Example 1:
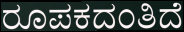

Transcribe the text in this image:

ರೂಪಕದಂತಿದೆ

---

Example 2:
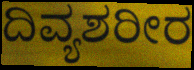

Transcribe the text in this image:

ದಿವ್ಯಶರೀರ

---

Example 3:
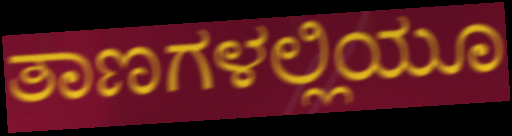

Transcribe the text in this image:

ತಾಣಗಳಲ್ಲಿಯೂ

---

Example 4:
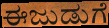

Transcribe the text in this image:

ಈಜುಡುಗೆ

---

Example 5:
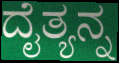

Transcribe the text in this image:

ದೈತ್ಯನ್ನ